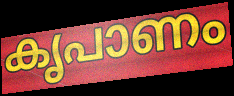
കൃപാണം